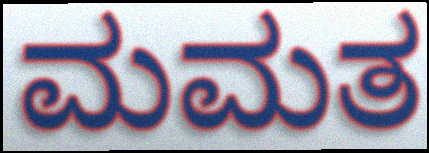
ಮಮತ